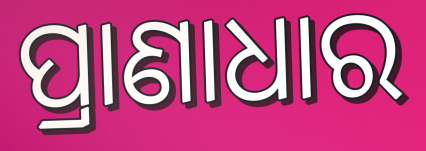
ପ୍ରାଣାଧାର